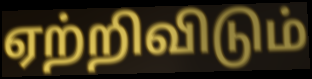
ஏற்றிவிடும்